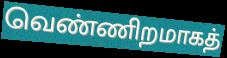
வெண்ணிறமாகத்